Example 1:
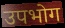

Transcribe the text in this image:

उपभोग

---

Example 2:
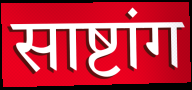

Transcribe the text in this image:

साष्टांग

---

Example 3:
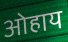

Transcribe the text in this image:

ओहाय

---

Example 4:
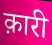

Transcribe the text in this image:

क़ारी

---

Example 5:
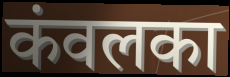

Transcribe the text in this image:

कंवलका